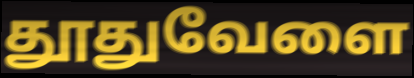
தூதுவேளை